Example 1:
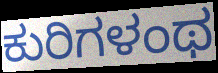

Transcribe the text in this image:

ಕುರಿಗಳಂಥ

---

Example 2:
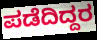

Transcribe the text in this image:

ಪಡೆದಿದ್ದರ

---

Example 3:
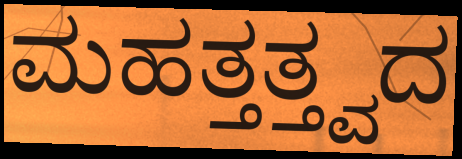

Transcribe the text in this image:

ಮಹತ್ತತ್ತ್ವದ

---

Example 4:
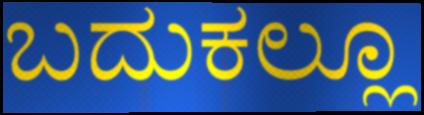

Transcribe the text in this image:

ಬದುಕಲ್ಲೂ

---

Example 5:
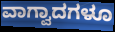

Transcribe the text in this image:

ವಾಗ್ವಾದಗಳೂ